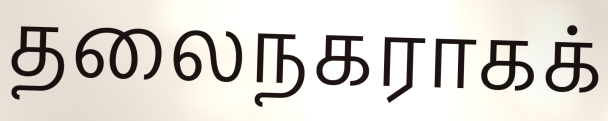
தலைநகராகக்